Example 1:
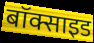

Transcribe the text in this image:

बॉक्साइड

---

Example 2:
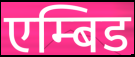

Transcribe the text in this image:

एम्बिड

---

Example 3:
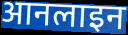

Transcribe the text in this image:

आनलाइन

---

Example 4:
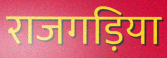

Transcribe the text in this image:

राजगड़िया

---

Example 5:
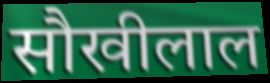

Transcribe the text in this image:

सौखीलाल